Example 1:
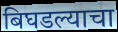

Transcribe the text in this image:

बिघडल्याचा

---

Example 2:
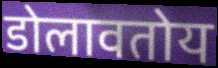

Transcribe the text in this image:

डोलावतोय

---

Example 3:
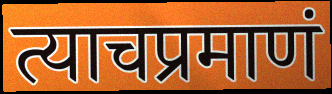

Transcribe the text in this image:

त्याचप्रमाणं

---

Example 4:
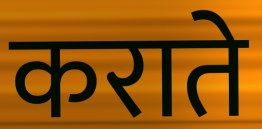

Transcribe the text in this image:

कराते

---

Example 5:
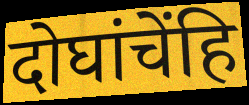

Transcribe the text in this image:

दोघांचेंहि